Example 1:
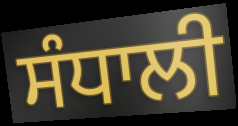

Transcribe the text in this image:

ਸੰਧਾਲੀ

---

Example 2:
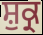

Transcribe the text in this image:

ਸ਼ੁਕ੍ਰ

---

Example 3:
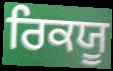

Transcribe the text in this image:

ਰਿਕਯੂ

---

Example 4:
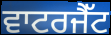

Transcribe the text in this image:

ਵਾਟਰਜੈੱਟ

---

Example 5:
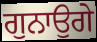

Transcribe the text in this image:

ਗੁਨਾਉਗੇ